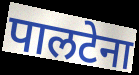
पालटेना